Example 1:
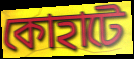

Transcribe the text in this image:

কোহাটে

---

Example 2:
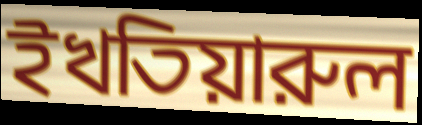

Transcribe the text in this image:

ইখতিয়ারুল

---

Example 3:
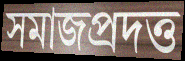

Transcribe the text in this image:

সমাজপ্রদত্ত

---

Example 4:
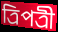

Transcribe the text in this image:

ত্রিপত্রী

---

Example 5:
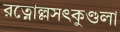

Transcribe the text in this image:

রত্নোল্লসৎকুণ্ডলা